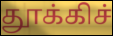
தூக்கிச்